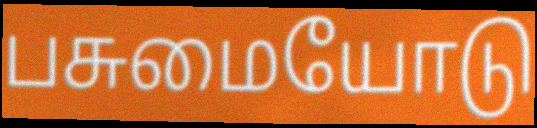
பசுமையோடு